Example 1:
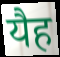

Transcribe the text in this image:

यैह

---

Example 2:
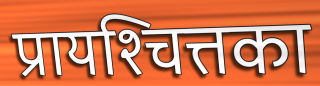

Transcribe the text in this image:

प्रायश्चित्तका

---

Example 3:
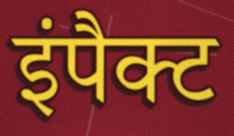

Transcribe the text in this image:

इंपैक्ट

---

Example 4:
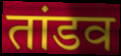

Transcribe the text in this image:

तांडव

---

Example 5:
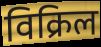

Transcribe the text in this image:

विक्रिल